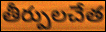
తీర్పులచేత